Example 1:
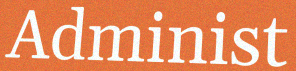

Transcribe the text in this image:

Administ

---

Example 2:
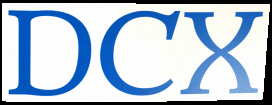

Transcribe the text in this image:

DCX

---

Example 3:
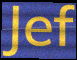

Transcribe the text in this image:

Jef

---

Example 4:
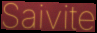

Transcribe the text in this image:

Saivite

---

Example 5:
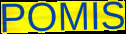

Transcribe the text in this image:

POMIS